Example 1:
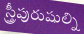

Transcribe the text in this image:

స్త్రీపురుషుల్ని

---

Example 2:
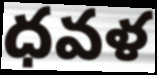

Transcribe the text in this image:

ధవళ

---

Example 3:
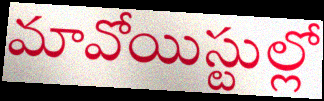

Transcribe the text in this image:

మావోయిస్టుల్లో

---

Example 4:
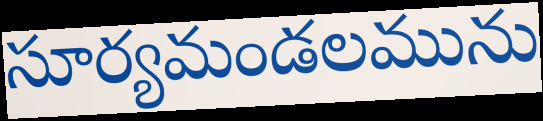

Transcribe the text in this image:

సూర్యమండలమును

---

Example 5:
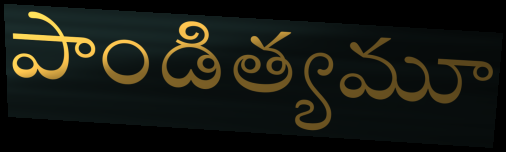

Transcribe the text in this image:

పాండిత్యమూ